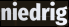
niedrig